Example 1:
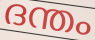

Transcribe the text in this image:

ദന്തം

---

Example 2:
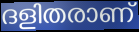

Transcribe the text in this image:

ദളിതരാണ്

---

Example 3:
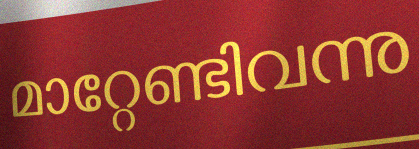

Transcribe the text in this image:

മാറ്റേണ്ടിവന്നു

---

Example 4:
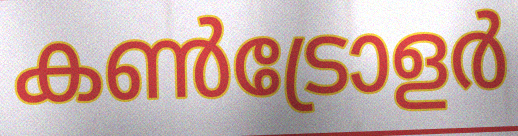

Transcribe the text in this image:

കൺട്രോളർ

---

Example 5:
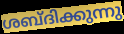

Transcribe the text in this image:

ശബ്ദിക്കുന്നു